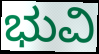
ಭುವಿ